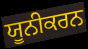
ਯੂਨੀਕਰਨ